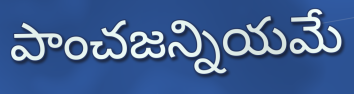
పాంచజన్నియమే